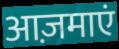
आज़माएं